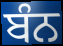
ਬੰਨ